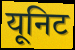
यूनिट